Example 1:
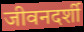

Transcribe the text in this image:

जीवनदर्शी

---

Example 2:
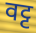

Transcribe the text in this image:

वट्ट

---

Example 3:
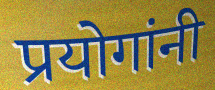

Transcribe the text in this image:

प्रयोगांनी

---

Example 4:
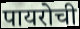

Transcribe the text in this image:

पायरोची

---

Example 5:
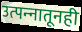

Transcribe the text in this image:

उत्पन्नातूनही